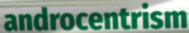
androcentrism